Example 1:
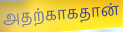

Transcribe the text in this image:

அதற்காகதான்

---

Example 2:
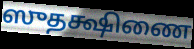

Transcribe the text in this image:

ஸுதக்ஷிணை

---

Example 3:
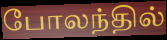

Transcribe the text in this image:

போலந்தில்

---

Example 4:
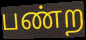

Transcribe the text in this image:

பண்ற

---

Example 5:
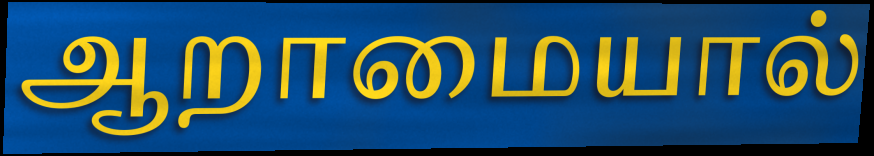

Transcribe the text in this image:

ஆறாமையால்